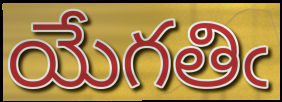
యేగతిఁ